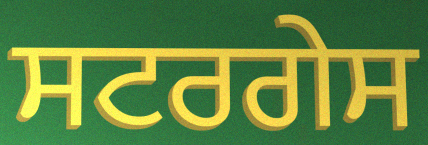
ਸਟਰਗੇਸ